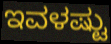
ಇವಳಷ್ಟು